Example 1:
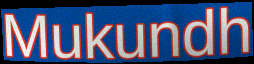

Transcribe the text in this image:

Mukundh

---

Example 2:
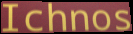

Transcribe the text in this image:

Ichnos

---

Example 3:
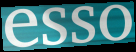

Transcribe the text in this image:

esso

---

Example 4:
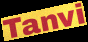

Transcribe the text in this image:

Tanvi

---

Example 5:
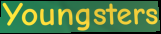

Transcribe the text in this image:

Youngsters